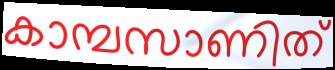
കാമ്പസാണിത്